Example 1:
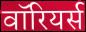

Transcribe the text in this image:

वॉरियर्स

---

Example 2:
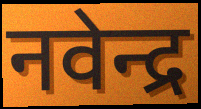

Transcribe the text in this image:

नवेन्द्र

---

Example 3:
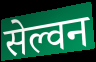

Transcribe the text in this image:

सेल्वन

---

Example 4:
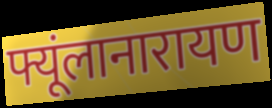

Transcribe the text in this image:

फ्यूंलानारायण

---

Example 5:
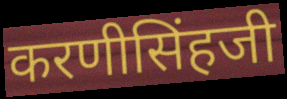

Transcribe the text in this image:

करणीसिंहजी